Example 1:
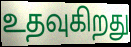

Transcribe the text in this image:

உதவுகிறது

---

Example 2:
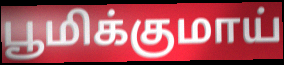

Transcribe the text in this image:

பூமிக்குமாய்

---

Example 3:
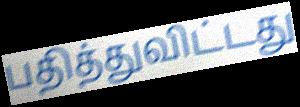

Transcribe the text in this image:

பதித்துவிட்டது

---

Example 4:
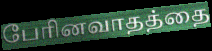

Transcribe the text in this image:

பேரினவாதத்தை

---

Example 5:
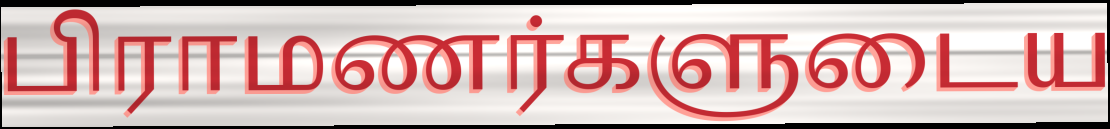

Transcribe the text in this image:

பிராமணர்களுடைய